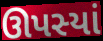
ઊપસ્યાં